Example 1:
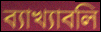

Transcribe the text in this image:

ব্যাখ্যাবলি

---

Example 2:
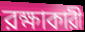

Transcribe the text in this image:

রক্ষাকারী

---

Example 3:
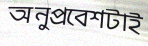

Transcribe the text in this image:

অনুপ্রবেশটাই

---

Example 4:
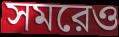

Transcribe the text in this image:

সমরেও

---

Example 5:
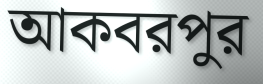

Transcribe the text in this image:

আকবরপুর